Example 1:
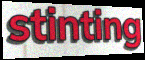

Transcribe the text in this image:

stinting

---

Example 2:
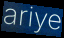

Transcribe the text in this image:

ariye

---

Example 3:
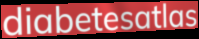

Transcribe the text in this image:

diabetesatlas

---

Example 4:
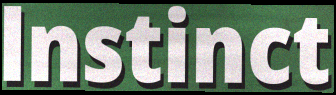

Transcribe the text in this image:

lnstinct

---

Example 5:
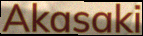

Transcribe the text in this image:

Akasaki